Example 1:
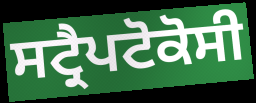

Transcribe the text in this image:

ਸਟ੍ਰੈਪਟੋਕੋਸੀ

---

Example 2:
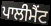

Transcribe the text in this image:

ਪਾਲੀਮੈਂਟ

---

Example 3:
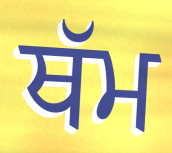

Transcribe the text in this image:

ਥੱਮ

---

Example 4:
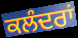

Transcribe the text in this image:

ਕਲੰਦਰਾਂ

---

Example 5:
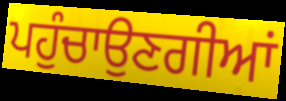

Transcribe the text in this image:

ਪਹੁੰਚਾਉਣਗੀਆਂ